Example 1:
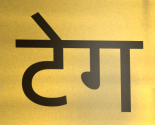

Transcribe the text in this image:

टेग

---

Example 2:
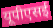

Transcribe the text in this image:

यूपीएसई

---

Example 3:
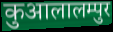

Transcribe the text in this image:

कुआलालम्पुर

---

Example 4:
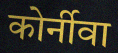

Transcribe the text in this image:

कोर्नीवा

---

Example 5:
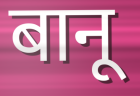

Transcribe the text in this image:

बानू